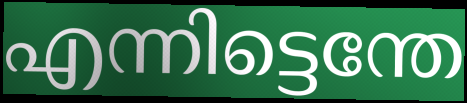
എന്നിട്ടെന്തേ